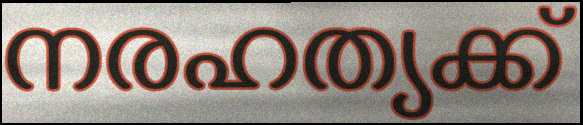
നരഹത്യക്ക്